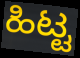
ಹಿಟ್ಟ